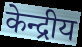
केन्द्रीय